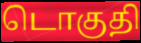
டொகுதி